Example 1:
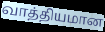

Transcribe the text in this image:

வாத்தியமான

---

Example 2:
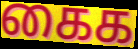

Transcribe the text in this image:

கைக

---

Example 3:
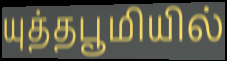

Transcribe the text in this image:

யுத்தபூமியில்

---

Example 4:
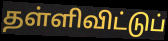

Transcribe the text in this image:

தள்ளிவிட்டுப்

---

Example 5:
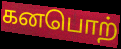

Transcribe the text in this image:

கனபொற்